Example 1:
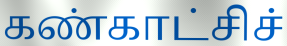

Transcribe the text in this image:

கண்காட்சிச்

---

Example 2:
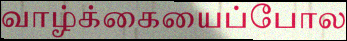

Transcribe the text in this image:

வாழ்க்கையைப்போல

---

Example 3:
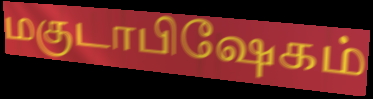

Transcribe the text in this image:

மகுடாபிஷேகம்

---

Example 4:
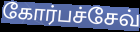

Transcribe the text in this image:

கோர்பச்சேவ்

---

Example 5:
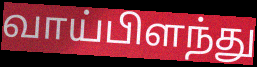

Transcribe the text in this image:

வாய்பிளந்து